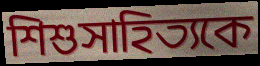
শিশুসাহিত্যকে